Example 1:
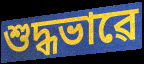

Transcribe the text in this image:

শুদ্ধভাৱে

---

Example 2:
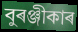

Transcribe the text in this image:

বুৰঞ্জীকাৰ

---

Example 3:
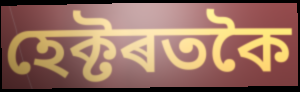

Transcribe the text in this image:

হেক্টৰতকৈ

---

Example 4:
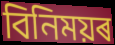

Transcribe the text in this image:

বিনিময়ৰ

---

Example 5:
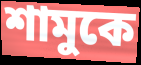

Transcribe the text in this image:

শামুকে